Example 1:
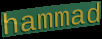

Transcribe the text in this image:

hammad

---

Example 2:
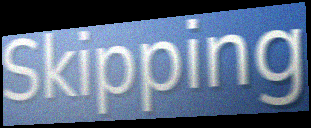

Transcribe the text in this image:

Skipping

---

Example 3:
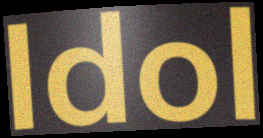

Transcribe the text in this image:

Idol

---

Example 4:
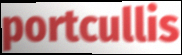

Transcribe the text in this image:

portcullis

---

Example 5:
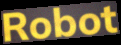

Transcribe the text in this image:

Robot